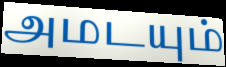
அமடயும்